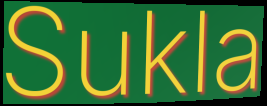
Sukla